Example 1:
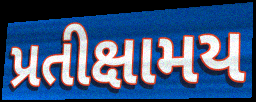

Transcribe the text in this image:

પ્રતીક્ષામય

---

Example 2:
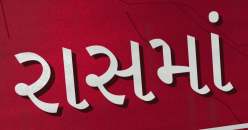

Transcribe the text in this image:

રાસમાં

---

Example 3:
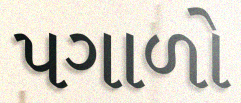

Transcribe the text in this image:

પગાળો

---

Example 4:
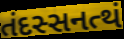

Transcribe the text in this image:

તંદસ્સનત્થં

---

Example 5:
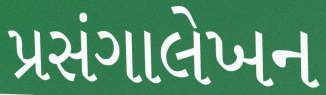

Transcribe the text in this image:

પ્રસંગાલેખન